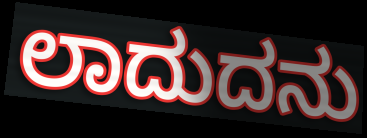
ಲಾದುದನು